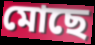
মোছে